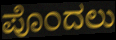
ಪೊಂದಲು